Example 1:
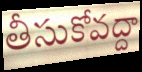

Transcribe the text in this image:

తీసుకోవద్దా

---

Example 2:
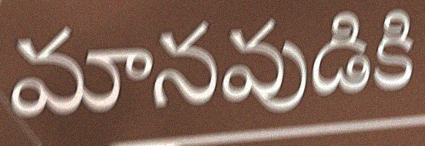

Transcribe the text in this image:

మానవుడికి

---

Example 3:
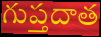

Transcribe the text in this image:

గుప్తదాత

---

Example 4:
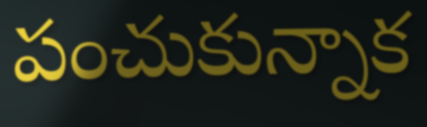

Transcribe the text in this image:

పంచుకున్నాక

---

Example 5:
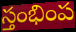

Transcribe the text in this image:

స్తంభింప